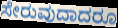
ಸೇರುವುದಾದರೂ